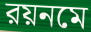
রয়নমে